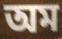
অম